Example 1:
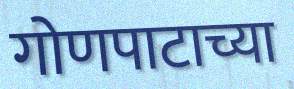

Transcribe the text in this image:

गोणपाटाच्या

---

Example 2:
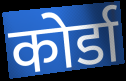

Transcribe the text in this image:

कोर्डा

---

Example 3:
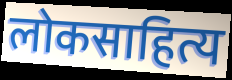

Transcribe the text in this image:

लोकसाहित्य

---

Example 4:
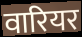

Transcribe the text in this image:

वारियर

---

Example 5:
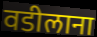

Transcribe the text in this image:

वडीलाना